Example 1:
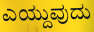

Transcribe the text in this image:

ಎಯ್ದುವುದು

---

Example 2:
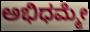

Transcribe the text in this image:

ಅಭಿಧಮ್ಮೇ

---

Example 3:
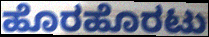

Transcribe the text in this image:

ಹೊರಹೊರಟು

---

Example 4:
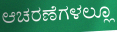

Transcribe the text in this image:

ಆಚರಣೆಗಳಲ್ಲೂ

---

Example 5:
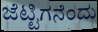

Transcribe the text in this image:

ಜೆಟ್ಟಿಗನೆಂದು